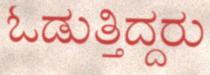
ಓಡುತ್ತಿದ್ದರು